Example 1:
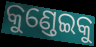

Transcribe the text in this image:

କୁଣ୍ଡେଇକୁ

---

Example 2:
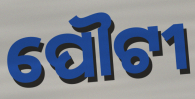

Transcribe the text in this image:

ପୌଟୀ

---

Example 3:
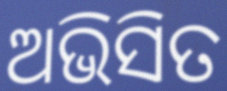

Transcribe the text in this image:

ଅଭିସିତ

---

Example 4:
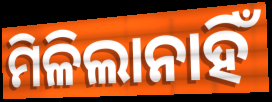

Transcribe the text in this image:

ମିଳିଲାନାହିଁ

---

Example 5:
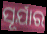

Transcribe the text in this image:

ସୂର୍ଯାର